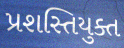
પ્રશસ્તિયુક્ત